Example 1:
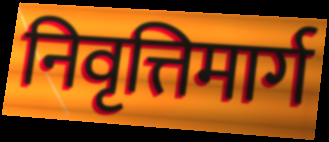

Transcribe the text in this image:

निवृत्तिमार्ग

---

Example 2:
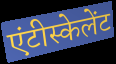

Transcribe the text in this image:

एंटीस्केलेंट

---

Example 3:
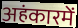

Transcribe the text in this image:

अहंकारमें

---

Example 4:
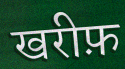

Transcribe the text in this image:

खरीफ़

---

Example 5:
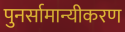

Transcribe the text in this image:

पुनर्सामान्यीकरण